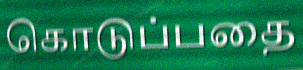
கொடுப்பதை